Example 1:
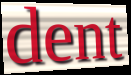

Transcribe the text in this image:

dent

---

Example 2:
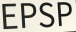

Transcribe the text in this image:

EPSP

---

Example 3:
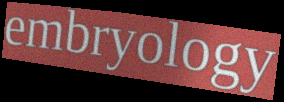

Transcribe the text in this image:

embryology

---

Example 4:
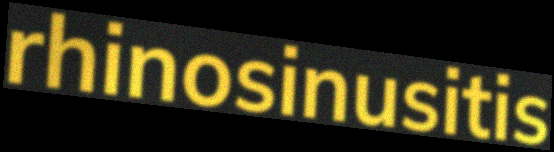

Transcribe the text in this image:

rhinosinusitis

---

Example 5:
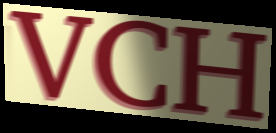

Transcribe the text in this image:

VCH